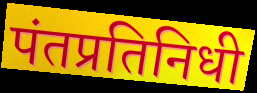
पंतप्रतिनिधी